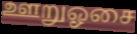
ஊறுஓசை